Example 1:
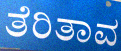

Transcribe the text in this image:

ತೆರಿತಾವ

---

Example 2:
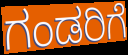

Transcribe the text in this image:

ಗಂಡರಿಗೆ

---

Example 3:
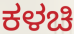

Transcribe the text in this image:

ಕಳಚಿ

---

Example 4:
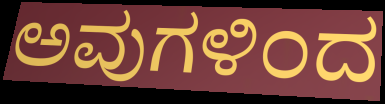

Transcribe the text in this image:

ಅವುಗಳಿಂದ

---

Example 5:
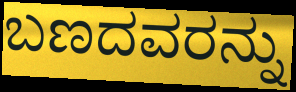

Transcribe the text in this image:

ಬಣದವರನ್ನು